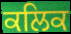
ਕਲਿਕ